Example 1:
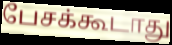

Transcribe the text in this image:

பேசக்கூடாது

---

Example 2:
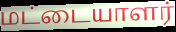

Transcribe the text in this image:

மட்டையாளர்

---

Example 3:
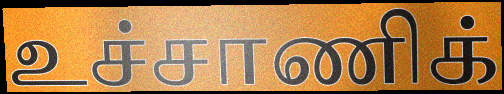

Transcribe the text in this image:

உச்சாணிக்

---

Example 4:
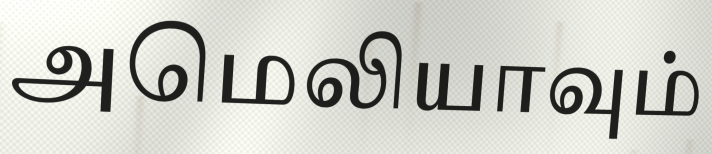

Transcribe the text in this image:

அமெலியாவும்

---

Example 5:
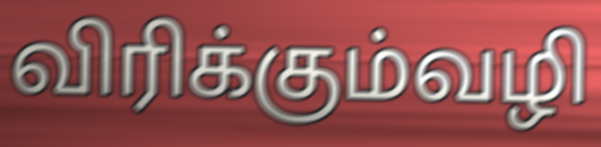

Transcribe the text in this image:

விரிக்கும்வழி